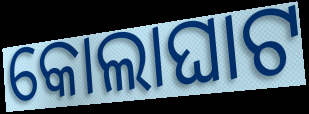
କୋଲାଘାଟ